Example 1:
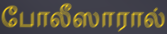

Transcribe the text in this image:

போலீஸாரால்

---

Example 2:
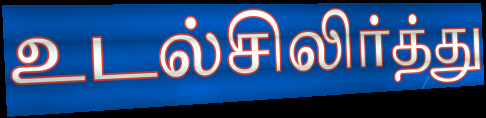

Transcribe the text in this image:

உடல்சிலிர்த்து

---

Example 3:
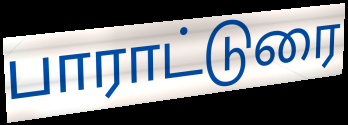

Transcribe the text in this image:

பாராட்டுரை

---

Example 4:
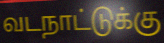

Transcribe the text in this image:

வடநாட்டுக்கு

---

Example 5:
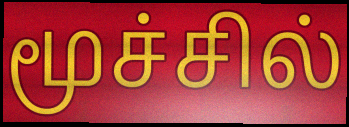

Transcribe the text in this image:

மூச்சில்